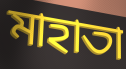
মাহাতা